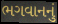
ભગવાનનું